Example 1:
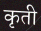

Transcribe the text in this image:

कृती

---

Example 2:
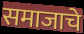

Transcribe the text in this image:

समाजाचे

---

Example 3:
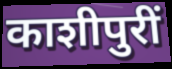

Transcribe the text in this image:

काशीपुरीं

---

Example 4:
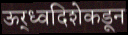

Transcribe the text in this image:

ऊर्ध्वदिशेकडून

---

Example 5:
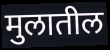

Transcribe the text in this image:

मुलातील